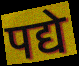
पद्ये